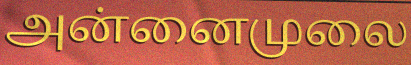
அன்னைமுலை